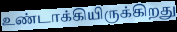
உண்டாக்கியிருக்கிறது